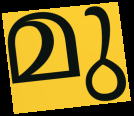
മു